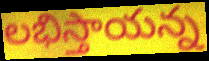
లభిస్తాయన్న